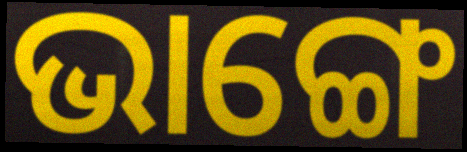
ଭାଙ୍ଗେ